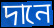
দানে